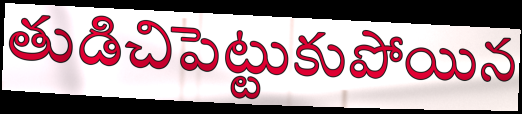
తుడిచిపెట్టుకుపోయిన